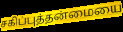
சகிப்புத்தன்மையை